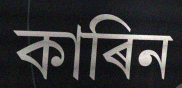
কাৰিন